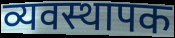
व्यवस्थापक